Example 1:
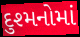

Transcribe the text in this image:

દુશ્મનોમાં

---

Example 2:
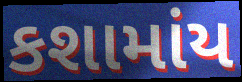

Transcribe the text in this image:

કશામાંય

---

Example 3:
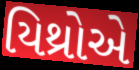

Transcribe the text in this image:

યિથ્રોએ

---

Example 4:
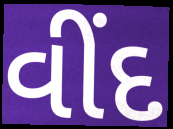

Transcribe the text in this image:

વીંદ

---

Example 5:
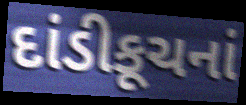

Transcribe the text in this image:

દાંડીકૂચનાં